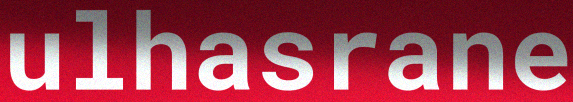
ulhasrane